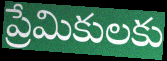
ప్రేమికులకు